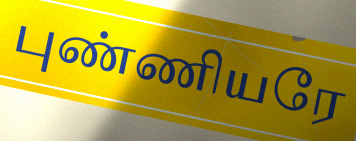
புண்ணியரே